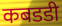
कबडडी